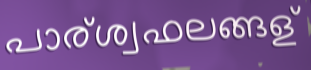
പാര്ശ്വഫലങ്ങള്